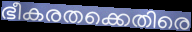
ഭീകരതക്കെതിരെ